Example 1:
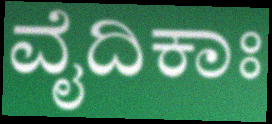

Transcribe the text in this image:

ವೈದಿಕಾಃ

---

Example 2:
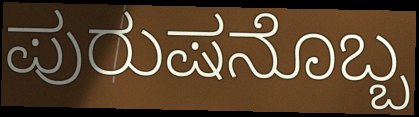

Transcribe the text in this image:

ಪುರುಷನೊಬ್ಬ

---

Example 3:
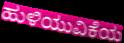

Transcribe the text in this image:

ಹುಳಿಯುವಿಕೆಯ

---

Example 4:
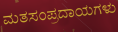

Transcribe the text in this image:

ಮತಸಂಪ್ರದಾಯಗಳು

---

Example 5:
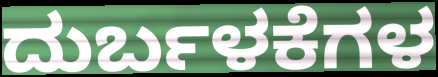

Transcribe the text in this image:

ದುರ್ಬಳಕೆಗಳ